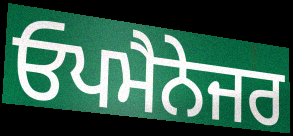
ਓਪਮੈਨੇਜਰ